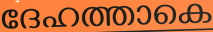
ദേഹത്താകെ